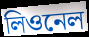
লিওনেল